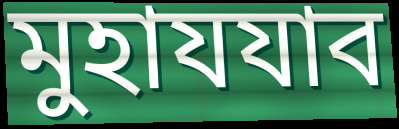
মুহাযযাব